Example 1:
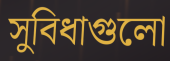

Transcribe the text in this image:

সুবিধাগুলো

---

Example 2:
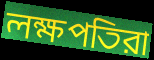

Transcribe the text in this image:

লক্ষপতিরা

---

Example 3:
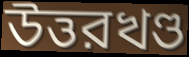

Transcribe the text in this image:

উত্তরখণ্ড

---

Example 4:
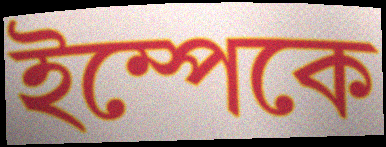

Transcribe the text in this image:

ইম্পেকে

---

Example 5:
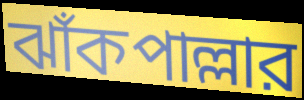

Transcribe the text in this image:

ঝাঁকপাল্লার